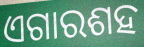
ଏଗାରଶହ